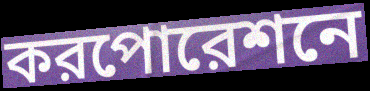
করপোরেশনে